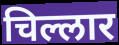
चिल्लार